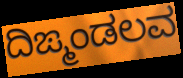
ದಿಙ್ಮಂಡಲವ